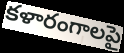
కళారంగాలపై